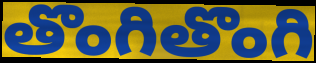
తొంగితొంగి